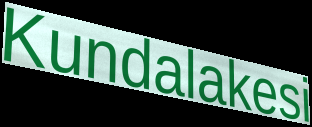
Kundalakesi